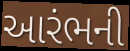
આરંભની